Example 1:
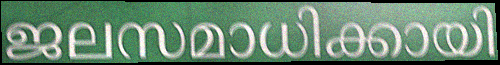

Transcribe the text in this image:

ജലസമാധിക്കായി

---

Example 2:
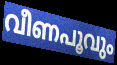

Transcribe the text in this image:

വീണപൂവും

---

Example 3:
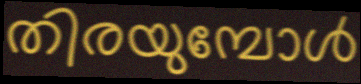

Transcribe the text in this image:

തിരയുമ്പോൾ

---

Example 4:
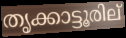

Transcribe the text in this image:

തൃക്കാട്ടൂരില്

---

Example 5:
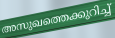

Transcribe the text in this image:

അസുഖത്തെക്കുറിച്ച്